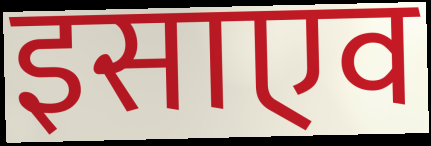
इसाएव